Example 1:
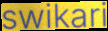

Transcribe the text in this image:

swikari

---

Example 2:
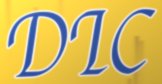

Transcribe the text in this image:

DIC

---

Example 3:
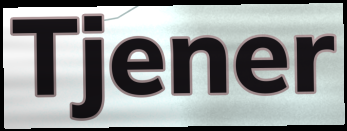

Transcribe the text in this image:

Tjener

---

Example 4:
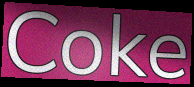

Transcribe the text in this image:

Coke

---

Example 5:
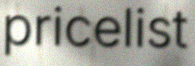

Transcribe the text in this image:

pricelist